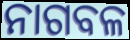
ନାଗବଳ